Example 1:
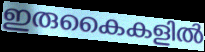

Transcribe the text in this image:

ഇരുകൈകളിൽ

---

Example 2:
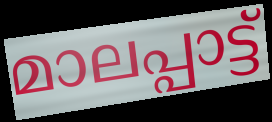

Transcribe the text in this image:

മാലപ്പാട്ട്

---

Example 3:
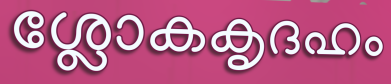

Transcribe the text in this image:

ശ്ലോകകൃദഹം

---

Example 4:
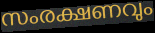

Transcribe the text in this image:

സംരക്ഷണവും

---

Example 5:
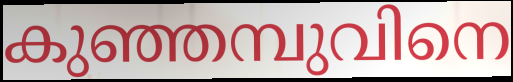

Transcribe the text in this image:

കുഞ്ഞമ്പുവിനെ